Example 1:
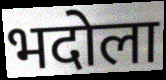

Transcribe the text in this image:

भदोला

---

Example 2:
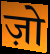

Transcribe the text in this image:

ज़ो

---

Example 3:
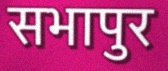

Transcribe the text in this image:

सभापुर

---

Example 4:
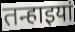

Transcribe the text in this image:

तन्हाइयां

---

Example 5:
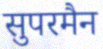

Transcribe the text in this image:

सुपरमैन